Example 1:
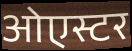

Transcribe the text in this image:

ओएस्टर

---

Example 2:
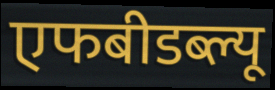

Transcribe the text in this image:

एफबीडब्ल्यू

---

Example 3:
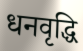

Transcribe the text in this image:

धनवृद्धि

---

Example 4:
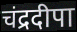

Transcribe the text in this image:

चंद्रदीपा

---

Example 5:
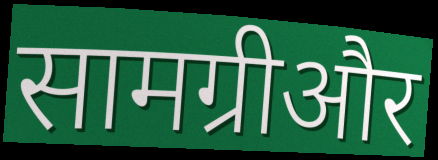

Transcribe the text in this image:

सामग्रीऔर